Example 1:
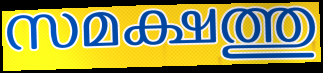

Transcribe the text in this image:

സമക്ഷത്തു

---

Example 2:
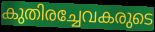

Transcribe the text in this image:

കുതിരച്ചേവകരുടെ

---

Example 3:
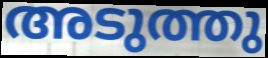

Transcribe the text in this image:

അടുത്തു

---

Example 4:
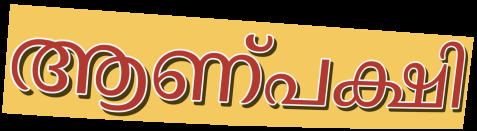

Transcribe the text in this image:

ആണ്പക്ഷി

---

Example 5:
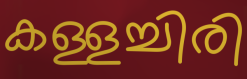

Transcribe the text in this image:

കള്ളച്ചിരി